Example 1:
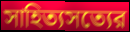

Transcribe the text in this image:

সাহিত্যসত্যের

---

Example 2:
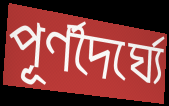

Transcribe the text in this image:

পূর্ণদৈর্ঘ্যে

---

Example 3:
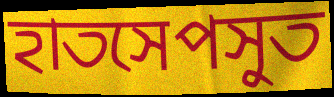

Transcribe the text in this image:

হাতসেপসুত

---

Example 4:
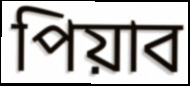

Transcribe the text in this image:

পিয়াব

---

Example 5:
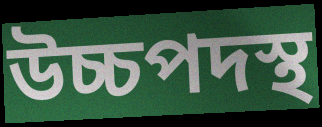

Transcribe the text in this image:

উচ্চপদস্থ